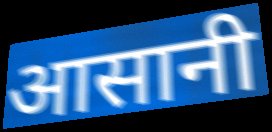
आसानी